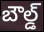
బౌల్డ్